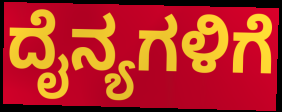
ದೈನ್ಯಗಳಿಗೆ